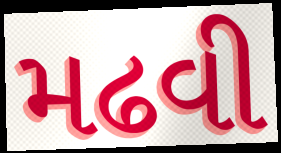
મઢવી